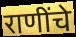
राणींचे